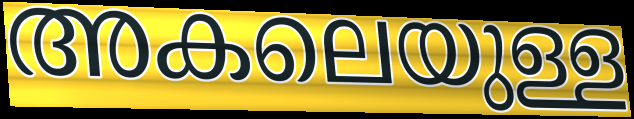
അകലെയുള്ള